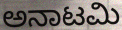
ಅನಾಟಮಿ